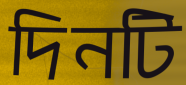
দিনটি